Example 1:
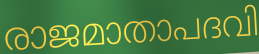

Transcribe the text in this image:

രാജമാതാപദവി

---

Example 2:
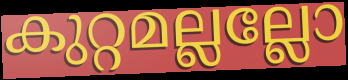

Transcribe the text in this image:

കുറ്റമല്ലല്ലോ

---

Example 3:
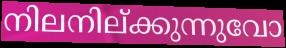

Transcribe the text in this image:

നിലനില്ക്കുന്നുവോ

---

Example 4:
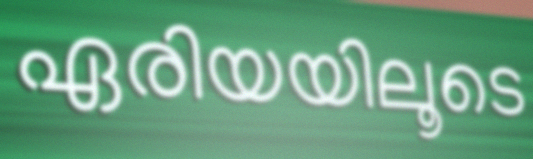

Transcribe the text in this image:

ഏരിയയിലൂടെ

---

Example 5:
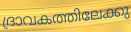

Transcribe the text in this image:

ദ്രാവകത്തിലേക്കു